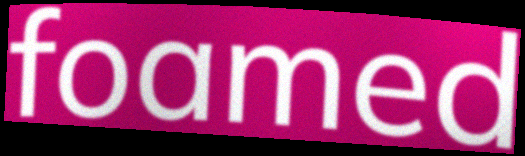
foamed